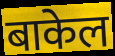
बाकेल